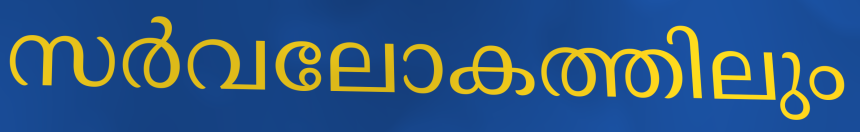
സർവലോകത്തിലും